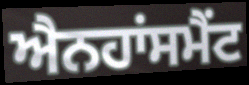
ਐਨਹਾਂਸਮੈਂਟ